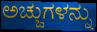
ಅಚ್ಚುಗಳನ್ನು